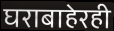
घराबाहेरही